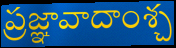
ప్రజ్ఞావాదాంశ్చ